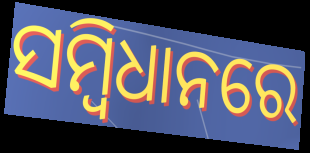
ସମ୍ବିଧାନରେ